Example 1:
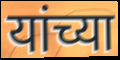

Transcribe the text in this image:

यांच्या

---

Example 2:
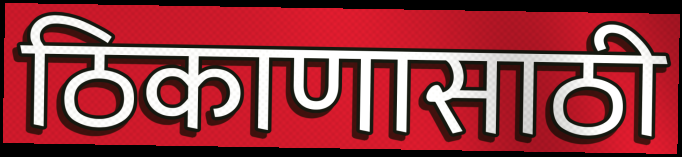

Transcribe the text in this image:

ठिकाणासाठी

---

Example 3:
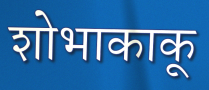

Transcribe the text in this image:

शोभाकाकू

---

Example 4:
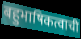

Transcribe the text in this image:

बहुभाषिकत्वाची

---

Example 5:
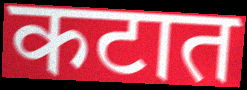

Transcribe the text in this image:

कटात